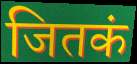
जितकं